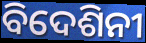
ବିଦେଶିନୀ